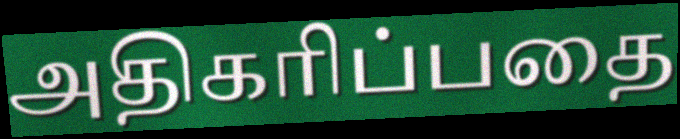
அதிகரிப்பதை